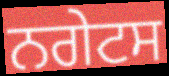
ਨਗੇਟਸ